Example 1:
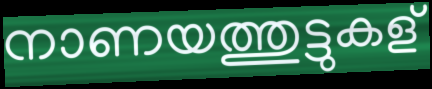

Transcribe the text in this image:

നാണയത്തുട്ടുകള്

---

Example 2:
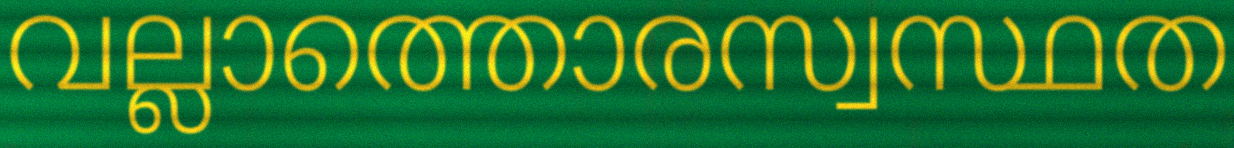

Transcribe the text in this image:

വല്ലാത്തൊരസ്വസ്ഥത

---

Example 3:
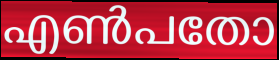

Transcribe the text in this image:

എൺപതോ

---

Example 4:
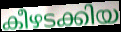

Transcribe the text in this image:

കീഴടക്കിയ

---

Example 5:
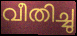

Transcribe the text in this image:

വീതിച്ചു